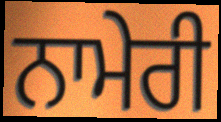
ਨਾਮੇਰੀ